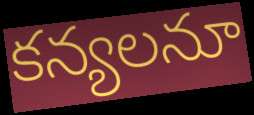
కన్యలనూ